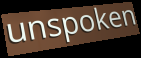
unspoken